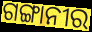
ଗଙ୍ଗାନୀର